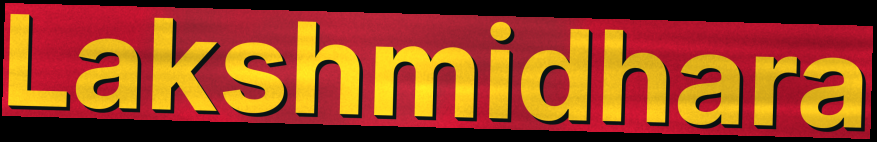
Lakshmidhara